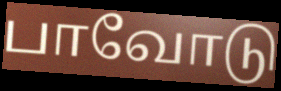
பாவோடு